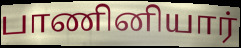
பாணினியார்